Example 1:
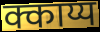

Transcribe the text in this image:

क्काय्य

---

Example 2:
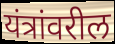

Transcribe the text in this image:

यंत्रांवरील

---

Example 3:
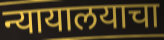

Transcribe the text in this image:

न्यायालयाचा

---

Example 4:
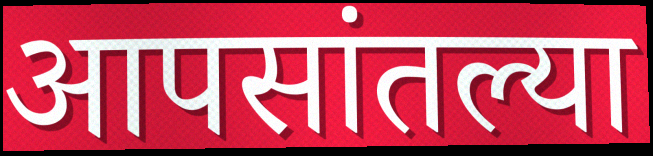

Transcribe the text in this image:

आपसांतल्या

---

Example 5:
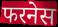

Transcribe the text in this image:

फरनेस